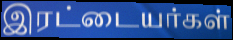
இரட்டையர்கள்